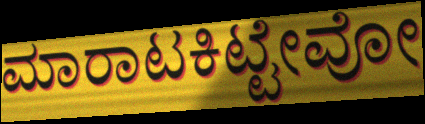
ಮಾರಾಟಕಿಟ್ಟೇವೋ